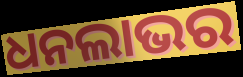
ଧନଲାଭର